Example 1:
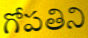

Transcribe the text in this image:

గోపతిని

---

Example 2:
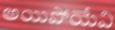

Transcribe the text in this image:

అయిపోయేవి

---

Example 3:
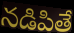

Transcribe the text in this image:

నడిపితే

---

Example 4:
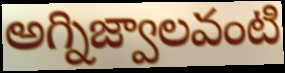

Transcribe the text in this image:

అగ్నిజ్వాలవంటి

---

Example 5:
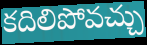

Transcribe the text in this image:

కదిలిపోవచ్చు